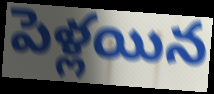
పెళ్లయిన